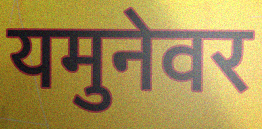
यमुनेवर